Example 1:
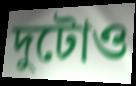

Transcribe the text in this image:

দুটোও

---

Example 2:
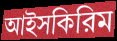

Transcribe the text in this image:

আইসকিরিম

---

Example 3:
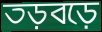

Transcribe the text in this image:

তড়বড়ে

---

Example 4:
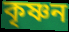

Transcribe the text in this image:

কৃষ্ণন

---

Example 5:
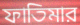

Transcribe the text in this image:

ফাতিমার